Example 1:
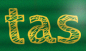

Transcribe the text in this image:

tas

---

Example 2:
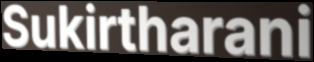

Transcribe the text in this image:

Sukirtharani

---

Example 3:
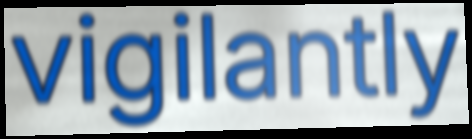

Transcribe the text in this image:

vigilantly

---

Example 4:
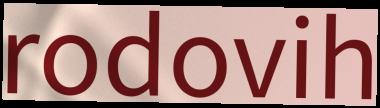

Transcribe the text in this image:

rodovih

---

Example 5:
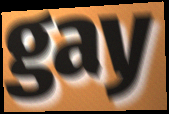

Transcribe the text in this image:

gay